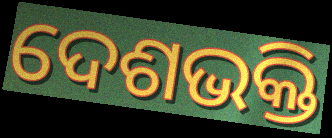
ଦେଶଭକ୍ତି